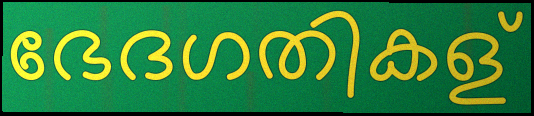
ഭേദഗതികള്